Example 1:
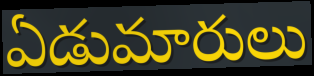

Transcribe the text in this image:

ఏడుమారులు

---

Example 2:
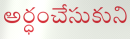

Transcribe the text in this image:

అర్ధంచేసుకుని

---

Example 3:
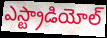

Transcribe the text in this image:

ఎస్ట్రాడియోల్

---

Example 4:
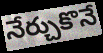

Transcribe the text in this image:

నేర్చుకొనే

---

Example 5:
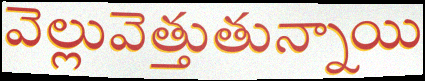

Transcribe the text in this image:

వెల్లువెత్తుతున్నాయి